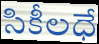
సికీలధే